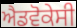
ਐਡਵੋਕੇਸੀ